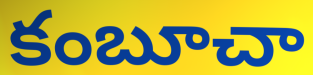
కంబూచా